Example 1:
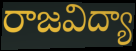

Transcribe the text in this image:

రాజవిద్యా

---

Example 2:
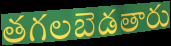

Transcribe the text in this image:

తగలబెడతారు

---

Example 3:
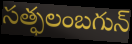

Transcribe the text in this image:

సత్ఫలంబగున్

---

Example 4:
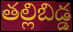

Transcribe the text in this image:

తల్లిబిడ్డ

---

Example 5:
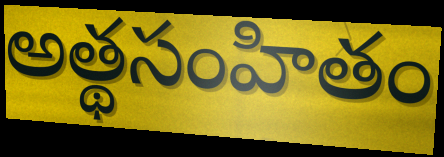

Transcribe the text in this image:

అత్థసంహితం